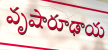
వృషారూఢాయ